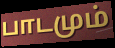
பாடமும்